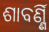
ଶାବର୍ଣ୍ଣି